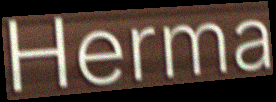
Herma